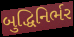
બુદ્ધિનિર્ભર